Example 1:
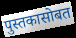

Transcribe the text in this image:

पुस्तकासोबत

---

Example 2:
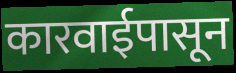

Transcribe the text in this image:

कारवाईपासून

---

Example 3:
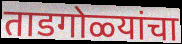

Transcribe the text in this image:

ताडगोळ्यांचा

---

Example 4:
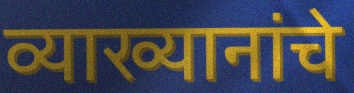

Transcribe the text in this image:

व्याख्यानांचे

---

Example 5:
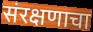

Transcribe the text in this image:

संरक्षणाचा